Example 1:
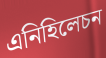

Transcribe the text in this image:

এনিহিলেচন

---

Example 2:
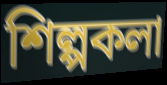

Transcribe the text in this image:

শিল্পকলা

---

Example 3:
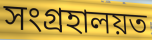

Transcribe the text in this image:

সংগ্ৰহালয়ত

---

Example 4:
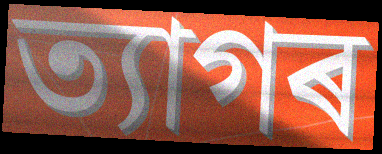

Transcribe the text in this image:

ত্যাগৰ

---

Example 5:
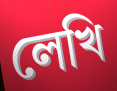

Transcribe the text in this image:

লেখি